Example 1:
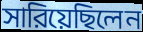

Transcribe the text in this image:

সারিয়েছিলেন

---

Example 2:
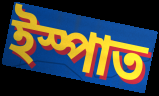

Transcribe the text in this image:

ইস্পাত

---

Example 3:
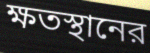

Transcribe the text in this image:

ক্ষতস্থানের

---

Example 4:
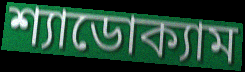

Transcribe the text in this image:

শ্যাডোক্যাম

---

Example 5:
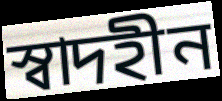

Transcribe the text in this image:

স্বাদহীন